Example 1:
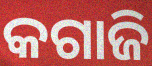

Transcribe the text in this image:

କଗାଜି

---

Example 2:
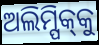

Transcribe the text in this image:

ଅଲିମ୍ପିକ୍‌କୁ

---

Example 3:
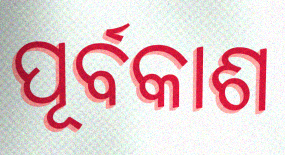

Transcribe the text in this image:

ପୂର୍ବକାଶ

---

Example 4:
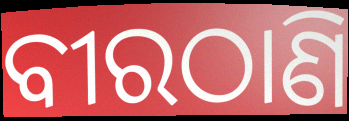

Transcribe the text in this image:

ବୀରଠାଣି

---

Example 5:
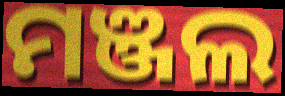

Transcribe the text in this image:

ମଞ୍ଜଲ